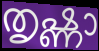
തൃഷ്ണാ